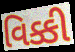
વિક્કી